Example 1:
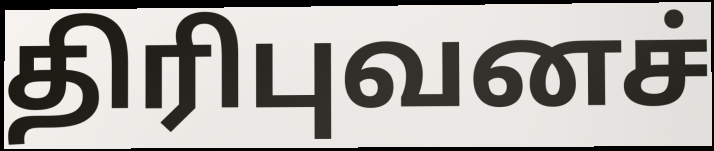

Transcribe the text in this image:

திரிபுவனச்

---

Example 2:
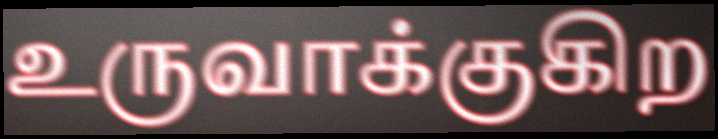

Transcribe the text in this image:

உருவாக்குகிற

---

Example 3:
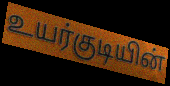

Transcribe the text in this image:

உயர்குடியின்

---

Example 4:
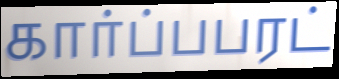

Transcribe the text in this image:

கார்ப்பபரட்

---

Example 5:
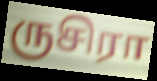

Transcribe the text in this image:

ருசிரா